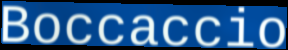
Boccaccio